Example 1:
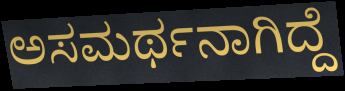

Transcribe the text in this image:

ಅಸಮರ್ಥನಾಗಿದ್ದೆ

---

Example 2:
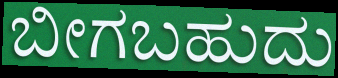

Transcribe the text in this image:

ಬೀಗಬಹುದು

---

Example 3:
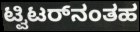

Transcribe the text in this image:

ಟ್ವಿಟರ್‌ನಂತಹ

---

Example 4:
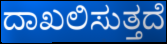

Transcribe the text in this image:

ದಾಖಲಿಸುತ್ತದೆ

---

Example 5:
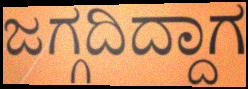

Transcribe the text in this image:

ಜಗ್ಗದಿದ್ದಾಗ